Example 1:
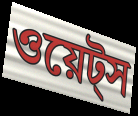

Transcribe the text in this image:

ওয়েট্স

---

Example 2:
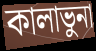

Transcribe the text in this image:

কালাভুনা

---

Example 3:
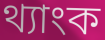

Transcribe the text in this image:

থ্যাংক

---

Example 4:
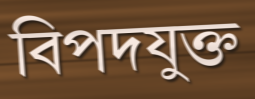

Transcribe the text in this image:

বিপদযুক্ত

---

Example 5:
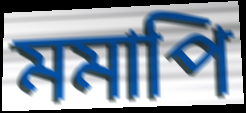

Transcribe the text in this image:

মমাপি